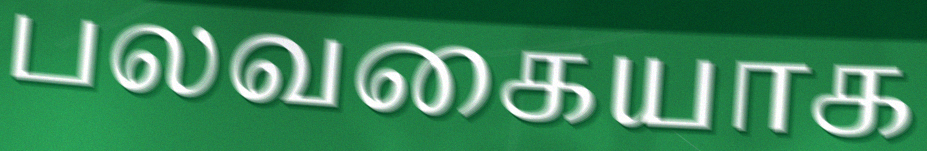
பலவகையாக